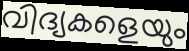
വിദ്യകളെയും